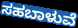
ಸಹಬಾಳುವೆ